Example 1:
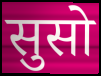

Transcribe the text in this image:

सुसो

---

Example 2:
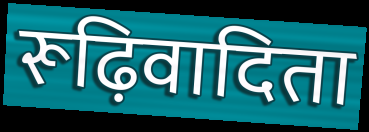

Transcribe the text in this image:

रूढ़िवादिता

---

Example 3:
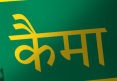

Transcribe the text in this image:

कैमा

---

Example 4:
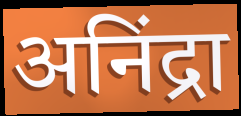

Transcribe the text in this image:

अनिंद्रा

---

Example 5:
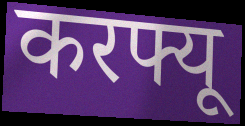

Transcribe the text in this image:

करफ्यू